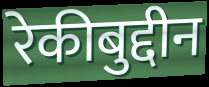
रेकीबुद्दीन